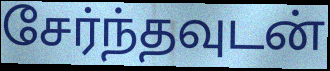
சேர்ந்தவுடன்